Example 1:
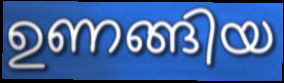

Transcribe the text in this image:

ഉണങ്ങിയ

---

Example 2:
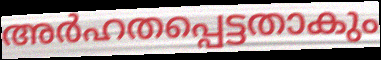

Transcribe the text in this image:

അർഹതപ്പെട്ടതാകും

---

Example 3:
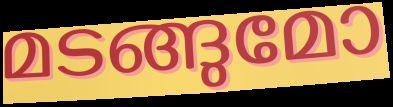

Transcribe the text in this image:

മടങ്ങുമോ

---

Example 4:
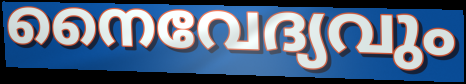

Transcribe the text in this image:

നൈവേദ്യവും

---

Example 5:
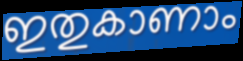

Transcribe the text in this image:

ഇതുകാണാം